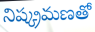
నిష్క్రమణతో